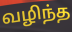
வழிந்த